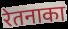
रेतनाका